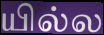
யில்ல